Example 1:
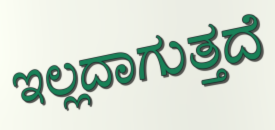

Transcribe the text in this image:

ಇಲ್ಲದಾಗುತ್ತದೆ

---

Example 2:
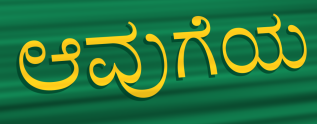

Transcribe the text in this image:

ಆವುಗೆಯ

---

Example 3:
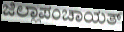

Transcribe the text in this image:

ಜಿಲ್ಲಾಪಂಚಾಯತ್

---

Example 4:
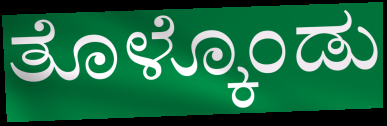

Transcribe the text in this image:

ತೊಳ್ಕೊಂಡು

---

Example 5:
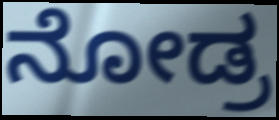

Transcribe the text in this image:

ನೋಡ್ರ